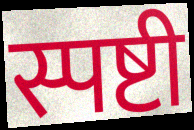
स्पष्टी